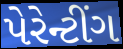
પેરેન્ટીંગ